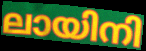
ലായിനി